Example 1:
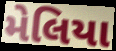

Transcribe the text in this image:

મેલિયા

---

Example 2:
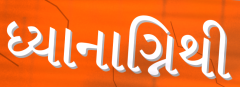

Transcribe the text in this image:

ધ્યાનાગ્નિથી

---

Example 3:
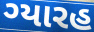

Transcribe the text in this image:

ગ્યારહ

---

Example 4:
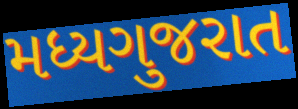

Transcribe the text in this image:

મધ્યગુજરાત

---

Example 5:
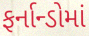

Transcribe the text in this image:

ફર્નાન્ડોમાં